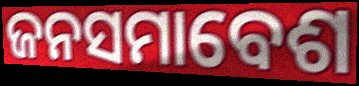
ଜନସମାବେଶ